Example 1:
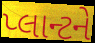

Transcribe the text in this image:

પ્લાન્ટને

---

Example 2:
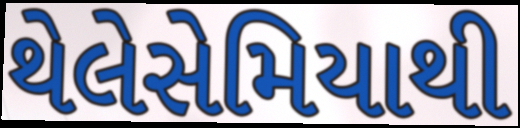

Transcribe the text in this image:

થેલેસેમિયાથી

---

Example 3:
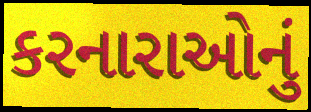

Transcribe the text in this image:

કરનારાઓનું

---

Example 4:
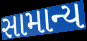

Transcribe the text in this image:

સામાન્ય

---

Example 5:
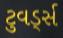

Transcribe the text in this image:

ટુવર્ડ્સ